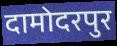
दामोदरपुर